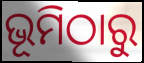
ଭୂମିଠାରୁ